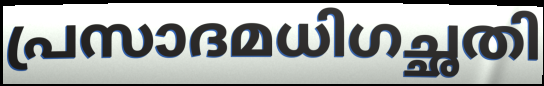
പ്രസാദമധിഗച്ഛതി